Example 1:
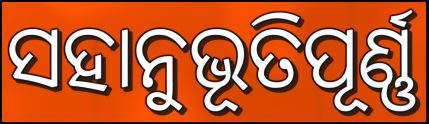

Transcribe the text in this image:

ସହାନୁଭୂତିପୂର୍ଣ୍ଣ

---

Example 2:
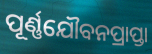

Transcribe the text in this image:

ପୂର୍ଣ୍ଣଯୌବନପ୍ରାପ୍ତା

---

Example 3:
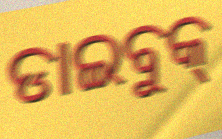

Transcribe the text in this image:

ଡାଇବୁକ୍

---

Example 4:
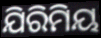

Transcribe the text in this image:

ଯିରିମିୟ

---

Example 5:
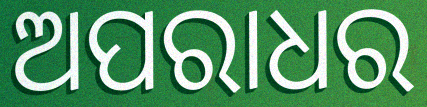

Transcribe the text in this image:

ଅପରାଧର